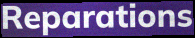
Reparations